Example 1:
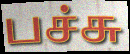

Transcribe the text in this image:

பச்சு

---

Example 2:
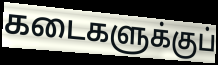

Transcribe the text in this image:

கடைகளுக்குப்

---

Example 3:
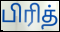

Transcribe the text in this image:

பிரித்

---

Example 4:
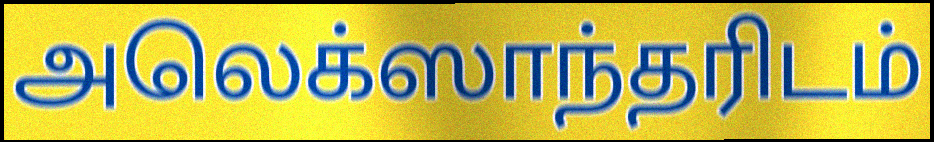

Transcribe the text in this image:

அலெக்ஸாந்தரிடம்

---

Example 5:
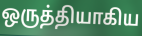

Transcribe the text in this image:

ஒருத்தியாகிய